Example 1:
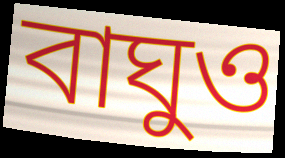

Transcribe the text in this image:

বাঘুও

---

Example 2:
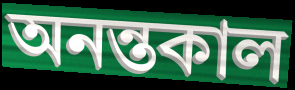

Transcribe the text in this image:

অনন্তকাল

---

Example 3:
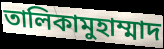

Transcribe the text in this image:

তালিকামুহাম্মাদ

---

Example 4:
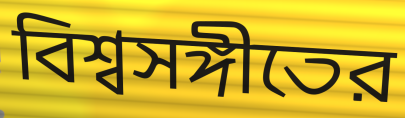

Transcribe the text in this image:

বিশ্বসঙ্গীতের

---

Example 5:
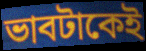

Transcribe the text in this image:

ভাবটাকেই